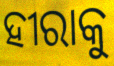
ହୀରାକୁ